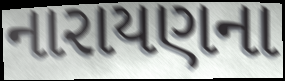
નારાયણના